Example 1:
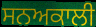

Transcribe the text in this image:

ਸਨਅਕਾਲੀ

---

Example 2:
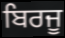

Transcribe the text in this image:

ਬਿਰਜੂ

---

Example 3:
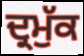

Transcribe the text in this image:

ਦ੍ਰਮੁੱਕ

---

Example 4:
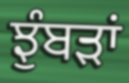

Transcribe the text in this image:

ਝੁੰਬੜਾਂ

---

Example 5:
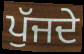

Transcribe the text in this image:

ਪੁੱਜਦੇ